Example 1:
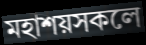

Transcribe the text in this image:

মহাশয়সকলে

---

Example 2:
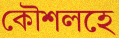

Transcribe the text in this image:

কৌশলহে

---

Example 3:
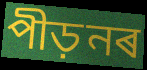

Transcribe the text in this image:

পীড়নৰ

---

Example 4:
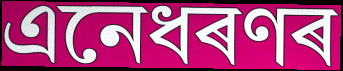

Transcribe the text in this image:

এনেধৰণৰ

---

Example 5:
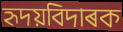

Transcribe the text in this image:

হৃদয়বিদাৰক